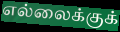
எல்லைக்குக்